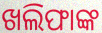
ଖଲିଫାଙ୍କ